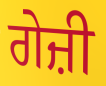
ਗੇਜ਼ੀ